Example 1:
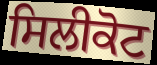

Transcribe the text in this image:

ਸਿਲੀਕੋਟ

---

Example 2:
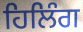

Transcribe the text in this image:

ਹਿਲਿੰਗ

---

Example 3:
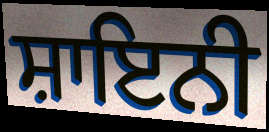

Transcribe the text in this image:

ਸ਼ਾਇਨੀ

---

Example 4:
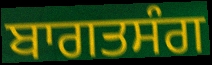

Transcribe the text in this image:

ਬਾਗਤਸੰਗ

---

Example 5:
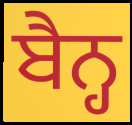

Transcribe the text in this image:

ਬੈਨ੍ਹ